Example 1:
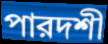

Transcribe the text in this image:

পারদশী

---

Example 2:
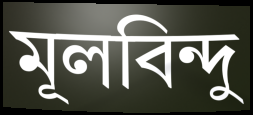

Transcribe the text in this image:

মূলবিন্দু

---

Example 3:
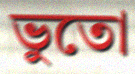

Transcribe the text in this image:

ভুতো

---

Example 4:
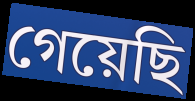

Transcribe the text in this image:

গেয়েছি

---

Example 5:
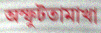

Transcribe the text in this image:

অস্ফুটতামাখা